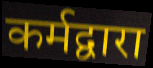
कर्मद्वारा